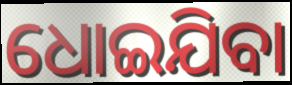
ଧୋଇଯିବା